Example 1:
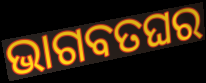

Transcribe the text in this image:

ଭାଗବତଘର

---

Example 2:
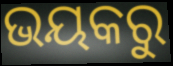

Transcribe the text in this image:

ଭୟକରୁ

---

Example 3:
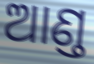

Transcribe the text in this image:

ଆଣ୍ଡ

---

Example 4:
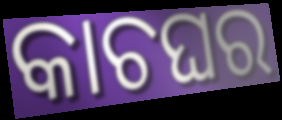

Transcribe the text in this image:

କାଚଘର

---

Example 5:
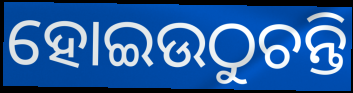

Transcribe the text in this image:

ହୋଇଉଠୁଚନ୍ତି